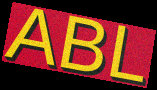
ABL